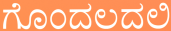
ಗೊಂದಲದಲಿ